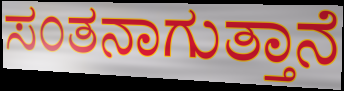
ಸಂತನಾಗುತ್ತಾನೆ